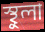
স্থুলা